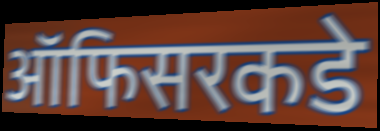
ऑफिसरकडे